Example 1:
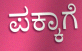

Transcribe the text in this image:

ಪಕ್ಕಾಗೆ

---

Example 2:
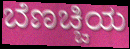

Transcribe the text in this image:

ಬೆಣಚ್ಚಿಯ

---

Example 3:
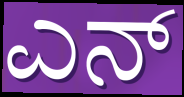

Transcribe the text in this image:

ಎನ್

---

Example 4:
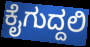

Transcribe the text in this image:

ಕೈಗುದ್ದಲಿ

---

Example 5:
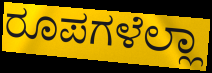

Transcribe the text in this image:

ರೂಪಗಳೆಲ್ಲಾ